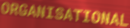
ORGANISATIONAL